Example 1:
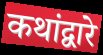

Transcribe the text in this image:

कथांद्वारे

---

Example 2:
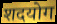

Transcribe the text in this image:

शदयोग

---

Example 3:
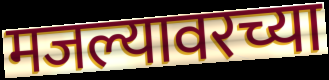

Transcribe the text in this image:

मजल्यावरच्या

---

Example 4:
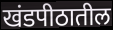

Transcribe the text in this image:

खंडपीठातील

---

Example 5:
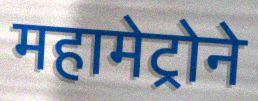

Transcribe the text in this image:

महामेट्रोने